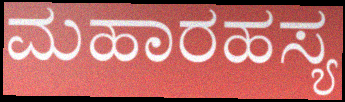
ಮಹಾರಹಸ್ಯ